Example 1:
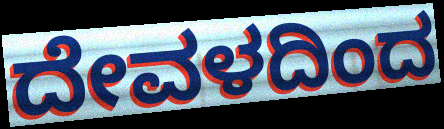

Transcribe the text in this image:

ದೇವಳದಿಂದ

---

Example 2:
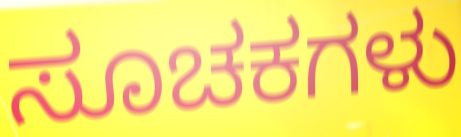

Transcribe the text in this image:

ಸೂಚಕಗಳು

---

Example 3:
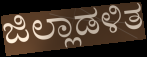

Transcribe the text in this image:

ಜಿಲ್ಲಾಡಳಿತ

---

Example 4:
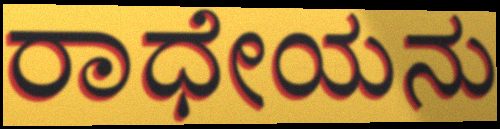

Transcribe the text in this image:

ರಾಧೇಯನು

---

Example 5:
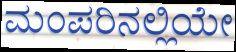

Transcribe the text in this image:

ಮಂಪರಿನಲ್ಲಿಯೇ